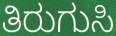
ತಿರುಗುಸಿ